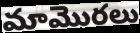
మామొరలు